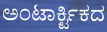
ಅಂಟಾರ್ಕ್ಟಿಕದ